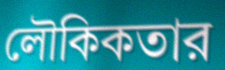
লৌকিকতার